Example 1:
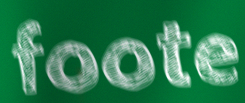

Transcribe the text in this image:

foote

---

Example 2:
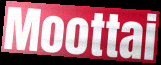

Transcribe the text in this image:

Moottai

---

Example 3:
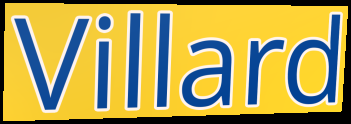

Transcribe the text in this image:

Villard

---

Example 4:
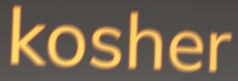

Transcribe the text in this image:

kosher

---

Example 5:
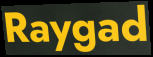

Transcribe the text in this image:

Raygad